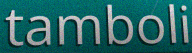
tamboli